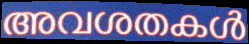
അവശതകൾ